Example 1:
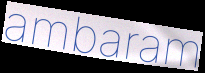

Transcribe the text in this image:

ambaram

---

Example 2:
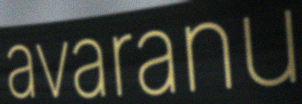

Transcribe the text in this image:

avaranu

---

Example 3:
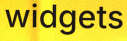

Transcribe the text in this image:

widgets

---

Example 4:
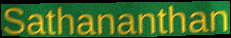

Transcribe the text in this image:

Sathananthan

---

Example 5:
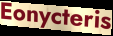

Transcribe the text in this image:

Eonycteris